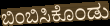
ಬಿಂಬಿಸಿಕೊಂಡು